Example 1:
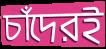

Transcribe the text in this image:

চাঁদেরই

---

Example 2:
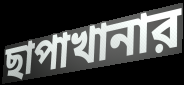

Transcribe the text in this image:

ছাপাখানার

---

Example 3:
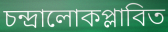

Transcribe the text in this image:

চন্দ্রালোকপ্লাবিত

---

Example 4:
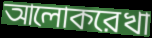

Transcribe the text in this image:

আলোকরেখা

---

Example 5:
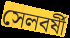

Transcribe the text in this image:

সেলবর্ষী